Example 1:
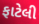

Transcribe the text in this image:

ફાટેલી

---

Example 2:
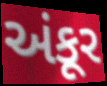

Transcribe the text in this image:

અંકૂર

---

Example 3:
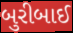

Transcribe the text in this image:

બુરીબાઈ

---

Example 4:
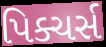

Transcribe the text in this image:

પિક્ચર્સ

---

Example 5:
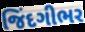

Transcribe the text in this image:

જિંદગીભર